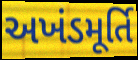
અખંડમૂર્તિ